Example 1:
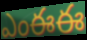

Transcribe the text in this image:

ఎంఈఈ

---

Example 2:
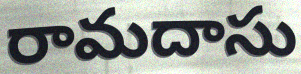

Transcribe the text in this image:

రామదాసు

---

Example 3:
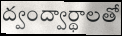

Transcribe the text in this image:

ద్వంద్వార్థాలతో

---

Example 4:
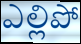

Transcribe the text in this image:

ఎల్లిపో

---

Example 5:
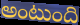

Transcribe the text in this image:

అంటుంది